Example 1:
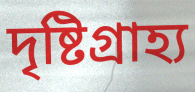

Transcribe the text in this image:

দৃষ্টিগ্রাহ্য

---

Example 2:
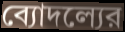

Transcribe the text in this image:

ব্যোদল্যের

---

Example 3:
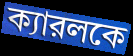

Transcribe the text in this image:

ক্যারলকে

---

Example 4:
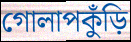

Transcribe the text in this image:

গোলাপকুঁড়ি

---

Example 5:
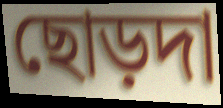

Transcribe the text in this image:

ছোড়দা